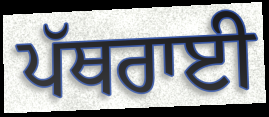
ਪੱਥਰਾਈ